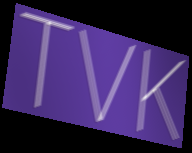
TVK